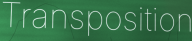
Transposition